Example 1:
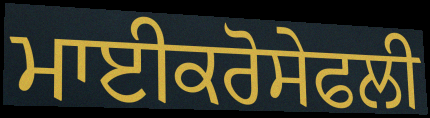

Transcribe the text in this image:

ਮਾਈਕਰੋਸੇਫਲੀ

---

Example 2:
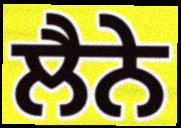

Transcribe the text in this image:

ਲੈਨੇ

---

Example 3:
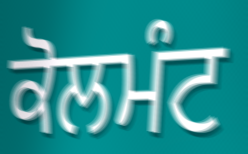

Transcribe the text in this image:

ਕੋਲਮੰਟ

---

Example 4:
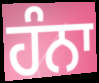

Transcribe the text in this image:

ਹੰਨਾ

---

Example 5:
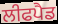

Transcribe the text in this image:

ਲੀਫਪੈਡ